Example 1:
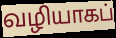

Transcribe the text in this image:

வழியாகப்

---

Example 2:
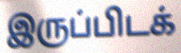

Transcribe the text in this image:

இருப்பிடக்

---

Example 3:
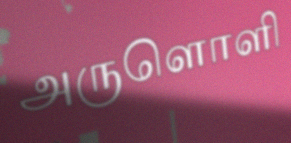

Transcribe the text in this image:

அருளொளி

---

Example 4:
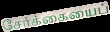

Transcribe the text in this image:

சேர்க்கையைப்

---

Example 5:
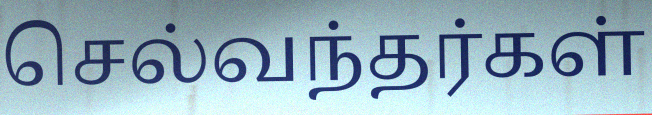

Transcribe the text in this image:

செல்வந்தர்கள்